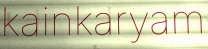
kainkaryam